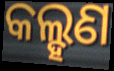
କଲ୍ହଣ